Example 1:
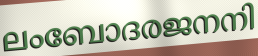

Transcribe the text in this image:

ലംബോദരജനനി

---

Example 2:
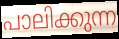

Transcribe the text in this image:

പാലിക്കുന്ന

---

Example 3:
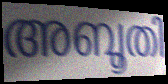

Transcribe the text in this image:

അബൂതി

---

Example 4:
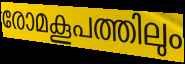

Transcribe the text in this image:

രോമകൂപത്തിലും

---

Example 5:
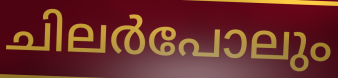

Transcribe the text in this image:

ചിലർപോലും